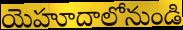
యెహూదాలోనుండి